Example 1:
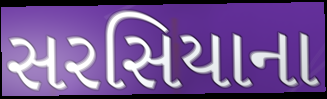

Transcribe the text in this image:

સરસિયાના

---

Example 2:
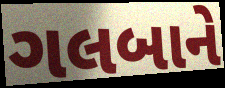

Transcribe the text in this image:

ગલબાને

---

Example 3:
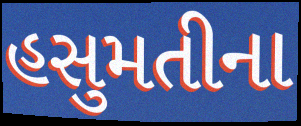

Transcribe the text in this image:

હસુમતીના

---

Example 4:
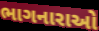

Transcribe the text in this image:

ભાગનારાઓ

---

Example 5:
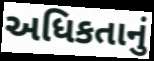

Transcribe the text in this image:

અધિકતાનું